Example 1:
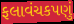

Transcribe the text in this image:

ફલાવંચકપણું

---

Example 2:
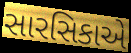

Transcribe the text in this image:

સારસિકાએ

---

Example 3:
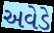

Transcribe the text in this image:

અવેડે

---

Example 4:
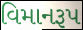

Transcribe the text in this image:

વિમાનરૂપ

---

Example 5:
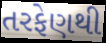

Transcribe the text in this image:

તરફેણથી